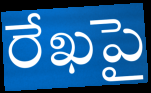
రేఖపై